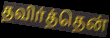
தவிர்த்தென்